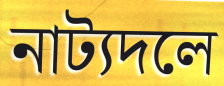
নাট্যদলে